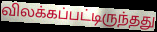
விலக்கப்பட்டிருந்தது